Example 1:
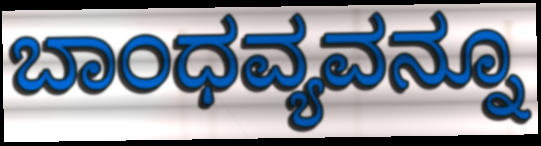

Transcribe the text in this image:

ಬಾಂಧವ್ಯವನ್ನೂ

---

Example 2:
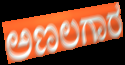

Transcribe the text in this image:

ಅಣಲಗಾರ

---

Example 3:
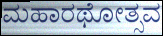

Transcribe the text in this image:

ಮಹಾರಥೋತ್ಸವ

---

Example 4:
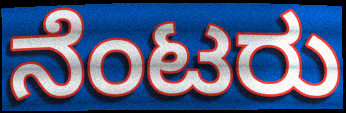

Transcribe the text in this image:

ನೆಂಟರು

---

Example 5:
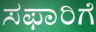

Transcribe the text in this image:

ಸಫಾರಿಗೆ